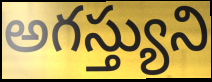
అగస్త్యుని